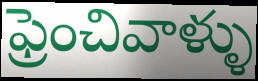
ఫ్రెంచివాళ్ళు